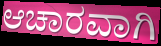
ಆಚಾರವಾಗಿ